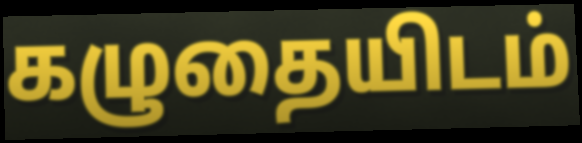
கழுதையிடம்